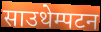
साउथेम्पटन